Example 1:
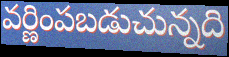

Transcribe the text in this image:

వర్ణింపబడుచున్నది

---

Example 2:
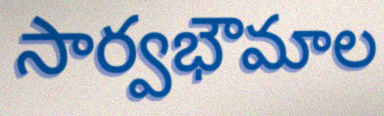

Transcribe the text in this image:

సార్వభౌమాల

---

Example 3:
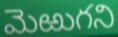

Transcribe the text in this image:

మెఱుగని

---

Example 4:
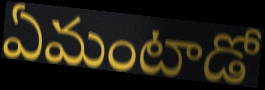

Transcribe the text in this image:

ఏమంటాడో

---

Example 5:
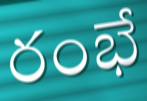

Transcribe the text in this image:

రంభే